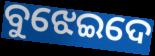
ବୁଝେଇଦେ